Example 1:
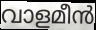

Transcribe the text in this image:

വാളമീൻ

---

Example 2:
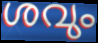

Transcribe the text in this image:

ശവും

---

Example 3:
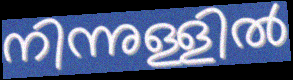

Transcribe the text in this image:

നിന്നുള്ളിൽ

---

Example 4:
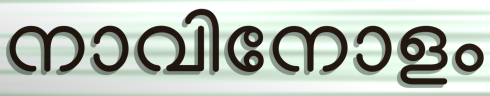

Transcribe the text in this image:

നാവിനോളം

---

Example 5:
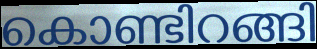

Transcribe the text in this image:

കൊണ്ടിറങ്ങി